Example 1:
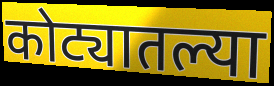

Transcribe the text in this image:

कोट्यातल्या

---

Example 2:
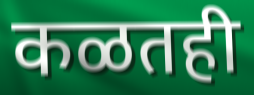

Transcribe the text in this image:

कळतही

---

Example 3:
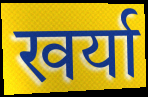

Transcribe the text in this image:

खर्या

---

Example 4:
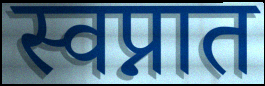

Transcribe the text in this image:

स्वप्नात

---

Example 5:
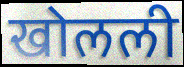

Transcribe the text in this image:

खोलली